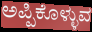
ಅಪ್ಪಿಕೊಳ್ಳುವ